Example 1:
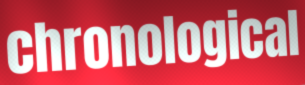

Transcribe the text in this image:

chronological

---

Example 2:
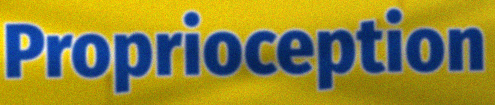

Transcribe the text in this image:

Proprioception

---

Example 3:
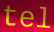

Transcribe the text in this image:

tel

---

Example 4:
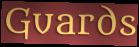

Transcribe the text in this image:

Guards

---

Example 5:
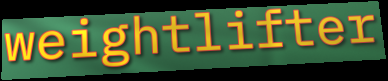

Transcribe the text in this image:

weightlifter